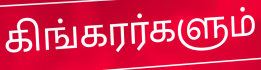
கிங்கரர்களும்